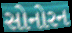
સોનોરન